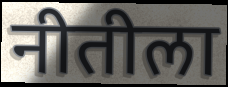
नीतीला